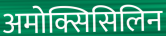
अमोक्सिसिलिन